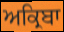
ਅਕ੍ਰਿਬਾ